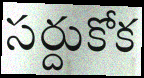
సర్దుకోక